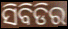
ସିବିଡିର